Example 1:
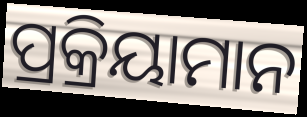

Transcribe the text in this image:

ପ୍ରକ୍ରିୟାମାନ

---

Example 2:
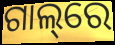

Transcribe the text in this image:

ଗାଲ୍‌ରେ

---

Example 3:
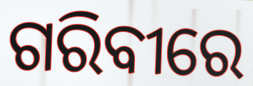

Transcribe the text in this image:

ଗରିବୀରେ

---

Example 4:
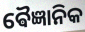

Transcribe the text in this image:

ଵୈଜ୍ଞାନିକ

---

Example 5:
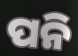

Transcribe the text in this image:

ପନି